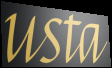
usta